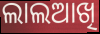
ଲାଲଆଖି